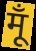
मूँ